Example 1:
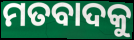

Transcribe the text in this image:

ମତବାଦକୁ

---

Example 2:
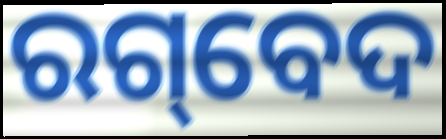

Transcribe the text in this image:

ରଗ୍‌ବେଦ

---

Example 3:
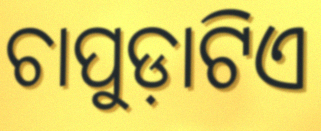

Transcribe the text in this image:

ଚାପୁଡ଼ାଟିଏ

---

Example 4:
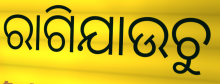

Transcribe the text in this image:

ରାଗିଯାଉଚୁ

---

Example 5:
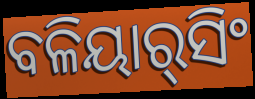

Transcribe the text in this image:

ବଳିୟାର୍‌ସିଂ